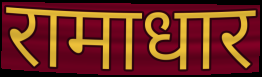
रामाधार